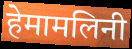
हेमामलिनी